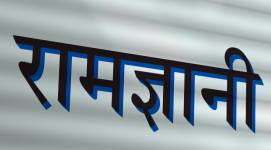
रामज्ञानी